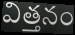
విత్తనం